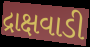
દ્રાક્ષવાડી